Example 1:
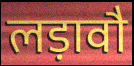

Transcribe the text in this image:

लड़ावौ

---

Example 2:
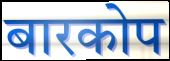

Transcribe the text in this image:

बारकोप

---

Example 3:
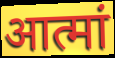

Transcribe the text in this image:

आत्मां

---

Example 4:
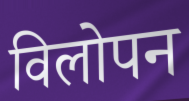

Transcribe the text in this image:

विलोपन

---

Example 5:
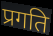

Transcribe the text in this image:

प्रगति